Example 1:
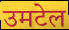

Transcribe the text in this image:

उमटेल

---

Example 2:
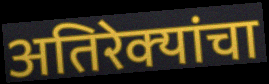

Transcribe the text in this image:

अतिरेक्यांचा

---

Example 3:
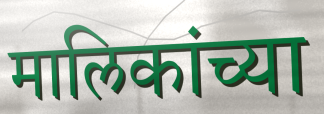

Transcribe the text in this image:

मालिकांच्या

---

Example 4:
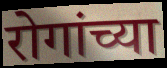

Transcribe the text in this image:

रोगांच्या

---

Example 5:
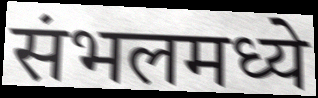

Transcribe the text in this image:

संभलमध्ये